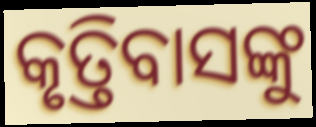
କୃତ୍ତିବାସଙ୍କୁ